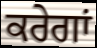
ਕਰੇਗਾਂ